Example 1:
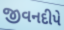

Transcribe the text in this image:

જીવનદીપે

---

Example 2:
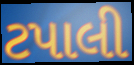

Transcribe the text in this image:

ટપાલી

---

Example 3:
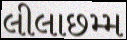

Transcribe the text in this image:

લીલાછમ્મ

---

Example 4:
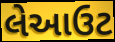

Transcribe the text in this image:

લેઆઉટ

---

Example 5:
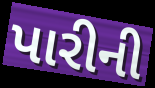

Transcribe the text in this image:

પારીની